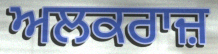
ਅਲਕਰਾਜ਼